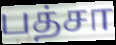
பத்சா